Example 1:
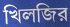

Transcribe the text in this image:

খিলজির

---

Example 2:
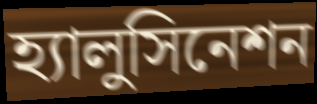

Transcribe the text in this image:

হ্যালুসিনেশন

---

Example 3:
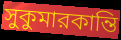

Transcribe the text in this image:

সুকুমারকান্তি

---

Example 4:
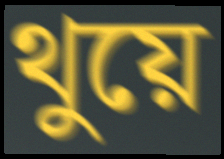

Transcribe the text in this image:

থুয়ে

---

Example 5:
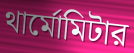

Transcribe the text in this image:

থার্মোমিটার